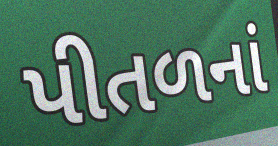
પીતળનાં